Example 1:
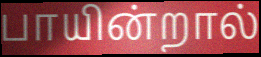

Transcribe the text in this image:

பாயின்றால்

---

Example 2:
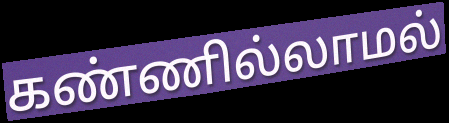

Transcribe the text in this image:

கண்ணில்லாமல்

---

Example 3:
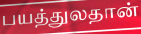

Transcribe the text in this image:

பயத்துலதான்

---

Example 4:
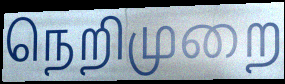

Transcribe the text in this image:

நெறிமுறை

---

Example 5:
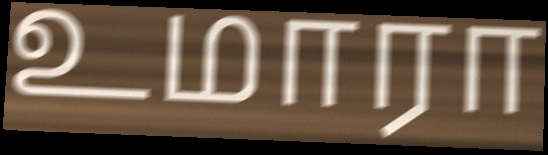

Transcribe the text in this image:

உமாரா